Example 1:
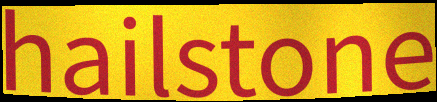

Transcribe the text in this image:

hailstone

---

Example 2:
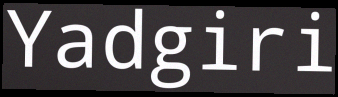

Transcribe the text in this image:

Yadgiri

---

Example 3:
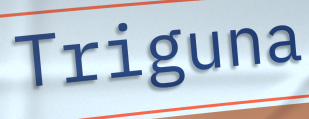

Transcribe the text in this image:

Triguna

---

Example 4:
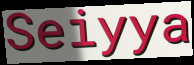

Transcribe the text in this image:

Seiyya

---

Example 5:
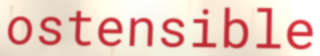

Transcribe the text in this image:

ostensible